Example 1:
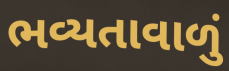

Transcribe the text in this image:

ભવ્યતાવાળું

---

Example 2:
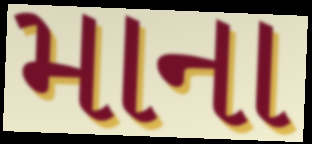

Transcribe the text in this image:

માના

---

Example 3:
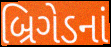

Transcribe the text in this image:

બ્રિગેડનાં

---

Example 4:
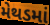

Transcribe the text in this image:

મેથડમાં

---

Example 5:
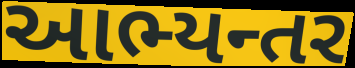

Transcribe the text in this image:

આભ્યન્તર